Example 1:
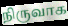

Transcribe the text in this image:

நிருவாக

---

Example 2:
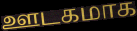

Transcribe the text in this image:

ஊடகமாக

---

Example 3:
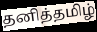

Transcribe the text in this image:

தனித்தமிழ்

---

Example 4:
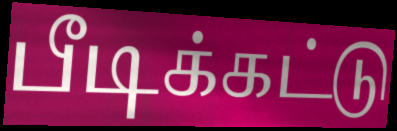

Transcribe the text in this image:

பீடிக்கட்டு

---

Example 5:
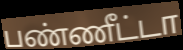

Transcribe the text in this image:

பண்ணீட்டா